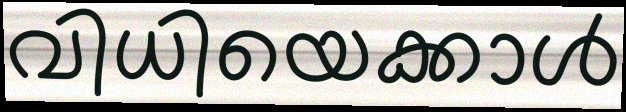
വിധിയെക്കാൾ